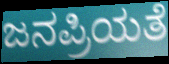
ಜನಪ್ರಿಯತೆ